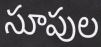
సూపుల